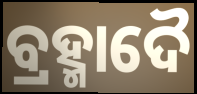
ବ୍ରହ୍ମାଦୈ